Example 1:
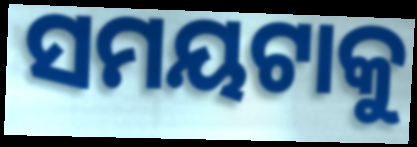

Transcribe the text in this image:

ସମୟଟାକୁ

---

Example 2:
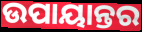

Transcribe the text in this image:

ଉପାୟାନ୍ତର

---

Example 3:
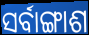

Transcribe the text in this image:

ସର୍ବାଙ୍ଗାଶ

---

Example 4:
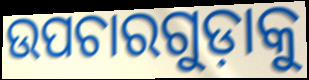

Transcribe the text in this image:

ଉପଚାରଗୁଡ଼ାକୁ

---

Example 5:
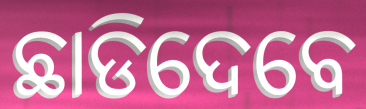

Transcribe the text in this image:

ଛାଡିଦେବେ